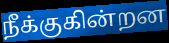
நீக்குகின்றன